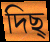
দিছ্